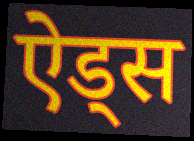
ऐड्स